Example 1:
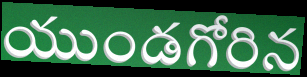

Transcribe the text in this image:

యుండగోరిన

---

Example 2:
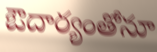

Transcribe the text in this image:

ఔదార్యంతోనూ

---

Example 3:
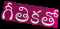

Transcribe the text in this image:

గీతికతో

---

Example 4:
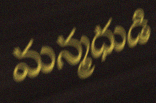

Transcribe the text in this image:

మన్మధుడి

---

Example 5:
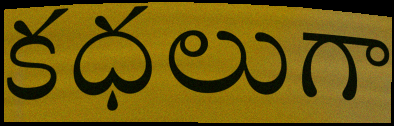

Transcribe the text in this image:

కధలుగా